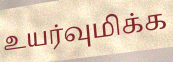
உயர்வுமிக்க